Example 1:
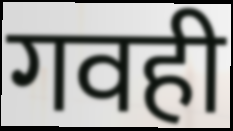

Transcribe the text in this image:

गवही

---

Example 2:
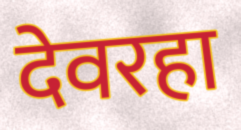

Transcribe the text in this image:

देवरहा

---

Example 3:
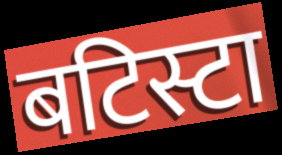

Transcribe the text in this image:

बटिस्टा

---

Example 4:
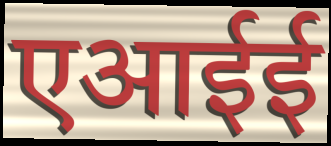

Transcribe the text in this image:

एआईई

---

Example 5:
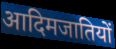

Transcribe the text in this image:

आदिमजातियों